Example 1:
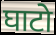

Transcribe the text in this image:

घाटो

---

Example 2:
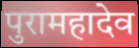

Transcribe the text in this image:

पुरामहादेव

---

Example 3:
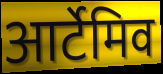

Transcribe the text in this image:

आर्टेमिव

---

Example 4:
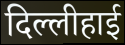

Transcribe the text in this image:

दिल्लीहाई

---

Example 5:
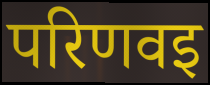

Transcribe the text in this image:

परिणवइ